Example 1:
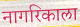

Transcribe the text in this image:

नागरिकाला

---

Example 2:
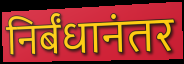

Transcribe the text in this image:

निर्बंधानंतर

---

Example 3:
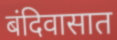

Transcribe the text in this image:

बंदिवासात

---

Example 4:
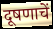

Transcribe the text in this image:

दूषणाचें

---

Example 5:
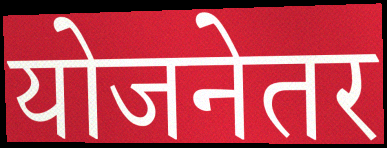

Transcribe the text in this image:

योजनेतर